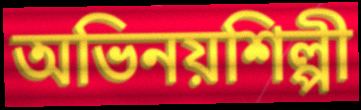
অভিনয়শিল্পী